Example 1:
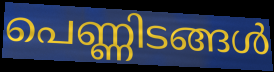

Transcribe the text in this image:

പെണ്ണിടങ്ങൾ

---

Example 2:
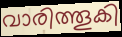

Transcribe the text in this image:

വാരിത്തൂകി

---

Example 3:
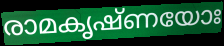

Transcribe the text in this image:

രാമകൃഷ്ണയോഃ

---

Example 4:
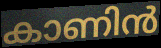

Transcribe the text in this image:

കാണിൻ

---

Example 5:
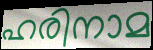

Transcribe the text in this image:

ഹരിനാമ